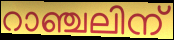
റാഞ്ചലിന്